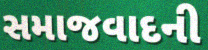
સમાજવાદની